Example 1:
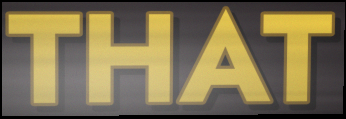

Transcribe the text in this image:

THAT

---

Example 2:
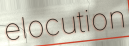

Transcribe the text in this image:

elocution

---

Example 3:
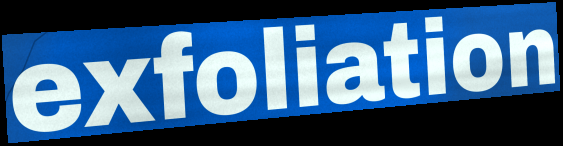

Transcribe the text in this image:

exfoliation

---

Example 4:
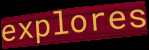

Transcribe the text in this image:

explores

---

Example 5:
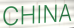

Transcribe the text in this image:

CHINA